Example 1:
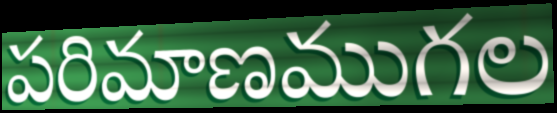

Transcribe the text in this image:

పరిమాణముగల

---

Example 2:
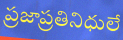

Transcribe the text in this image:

ప్రజాప్రతినిధులే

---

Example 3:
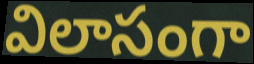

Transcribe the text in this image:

విలాసంగా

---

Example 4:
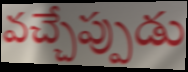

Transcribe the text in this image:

వచ్చేప్పుడు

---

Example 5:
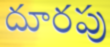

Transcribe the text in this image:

దూరపు